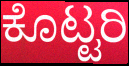
ಕೊಟ್ಟರಿ